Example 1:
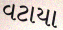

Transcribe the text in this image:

વટાયા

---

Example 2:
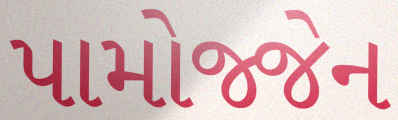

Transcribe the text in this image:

પામોજ્જેન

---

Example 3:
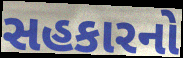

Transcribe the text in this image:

સહકારનો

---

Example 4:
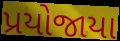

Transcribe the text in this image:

પ્રયોજાયા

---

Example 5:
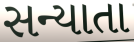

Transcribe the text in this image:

સન્યાતા